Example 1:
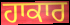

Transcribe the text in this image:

ਹਾਕਾਰ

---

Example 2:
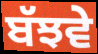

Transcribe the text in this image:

ਬੱਝਵੇ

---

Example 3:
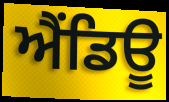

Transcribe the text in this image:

ਐਂਡਿਊ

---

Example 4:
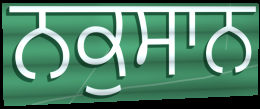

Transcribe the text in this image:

ਨਕੁਸਾਨ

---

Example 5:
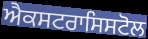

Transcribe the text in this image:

ਐਕਸਟਰਾਸਿਸਟੋਲ